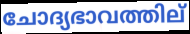
ചോദ്യഭാവത്തില്